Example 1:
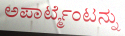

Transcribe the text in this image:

ಅಪಾರ್ಟ್ಮೆಂಟನ್ನು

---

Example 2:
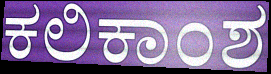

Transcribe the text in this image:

ಕಲಿಕಾಂಶ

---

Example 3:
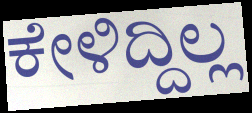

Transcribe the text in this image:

ಕೇಳಿದ್ದಿಲ್ಲ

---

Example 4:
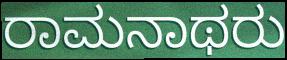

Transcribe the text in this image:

ರಾಮನಾಥರು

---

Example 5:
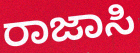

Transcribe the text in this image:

ರಾಜಾಸಿ